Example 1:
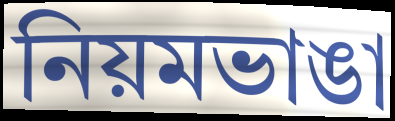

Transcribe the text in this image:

নিয়মভাঙা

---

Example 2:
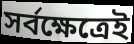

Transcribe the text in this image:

সর্বক্ষেত্রেই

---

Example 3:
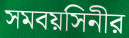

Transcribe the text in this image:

সমবয়সিনীর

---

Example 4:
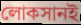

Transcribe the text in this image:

লোকসানই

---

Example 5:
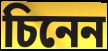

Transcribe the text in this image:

চিনেন